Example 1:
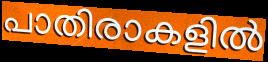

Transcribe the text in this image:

പാതിരാകളിൽ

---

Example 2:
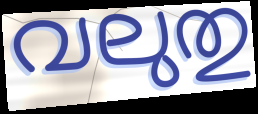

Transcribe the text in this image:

വലുതു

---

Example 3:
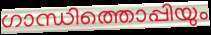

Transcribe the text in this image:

ഗാന്ധിത്തൊപ്പിയും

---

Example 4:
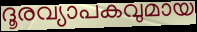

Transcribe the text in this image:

ദൂരവ്യാപകവുമായ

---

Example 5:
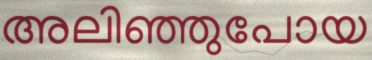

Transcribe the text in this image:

അലിഞ്ഞുപോയ